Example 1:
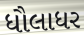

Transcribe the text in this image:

ધૌલાધર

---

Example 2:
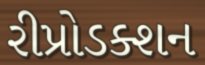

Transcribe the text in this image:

રીપ્રોડક્શન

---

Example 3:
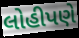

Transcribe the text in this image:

લોહીપણે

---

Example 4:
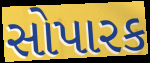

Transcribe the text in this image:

સોપારક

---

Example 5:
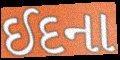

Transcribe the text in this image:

ઈદના